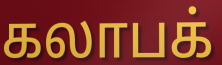
கலாபக்